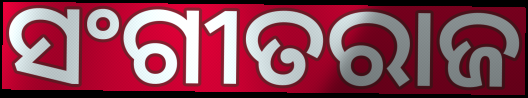
ସଂଗୀତରାଜ